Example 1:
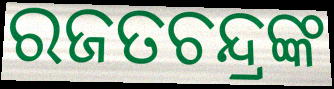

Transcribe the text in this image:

ରଜତଚନ୍ଦ୍ରଙ୍କ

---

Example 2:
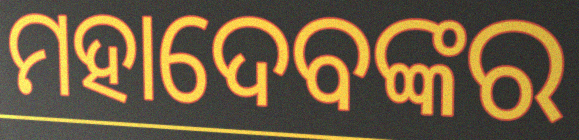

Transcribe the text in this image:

ମହାଦେବଙ୍କର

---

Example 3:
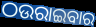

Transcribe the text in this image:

ଠଉରାଇବାର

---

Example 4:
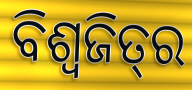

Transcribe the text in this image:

ବିଶ୍ୱଜିତ୍‌ର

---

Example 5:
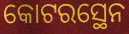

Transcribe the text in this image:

କୋଟରସ୍ଥେନ